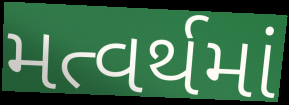
મત્વર્થમાં